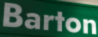
Barton